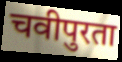
चवीपुरता